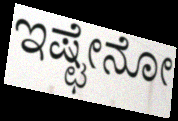
ಇಷ್ಟೇನೋ